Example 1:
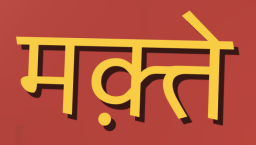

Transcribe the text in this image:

मक़्ते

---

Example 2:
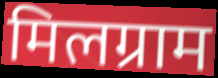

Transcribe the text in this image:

मिलग्राम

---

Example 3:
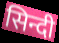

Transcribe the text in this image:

सिन्दी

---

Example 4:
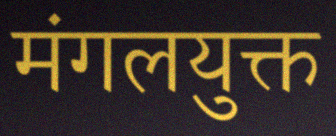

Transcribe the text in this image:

मंगलयुक्त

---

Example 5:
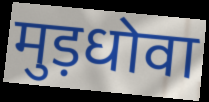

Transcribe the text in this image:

मुड़धोवा